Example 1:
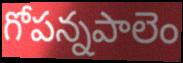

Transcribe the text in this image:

గోపన్నపాలెం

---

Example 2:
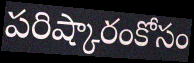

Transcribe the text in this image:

పరిష్కారంకోసం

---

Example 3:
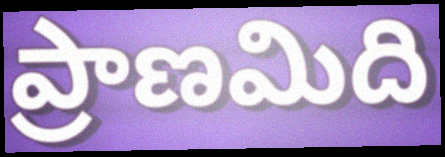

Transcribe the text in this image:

ప్రాణమిది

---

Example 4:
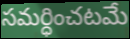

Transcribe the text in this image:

సమర్ధించటమే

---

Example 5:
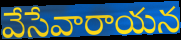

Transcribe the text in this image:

వేసేవారాయన